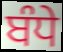
ਬੰਧੇ